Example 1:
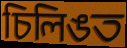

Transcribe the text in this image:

চিলিঙত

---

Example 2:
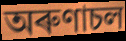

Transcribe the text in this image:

অৰুণাচল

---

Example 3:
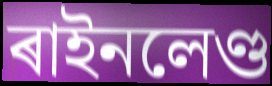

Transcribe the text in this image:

ৰাইনলেণ্ড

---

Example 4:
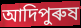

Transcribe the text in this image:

আদিপুৰুষ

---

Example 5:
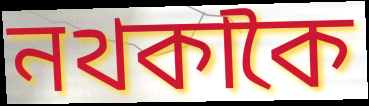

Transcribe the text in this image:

নথকাকৈ